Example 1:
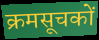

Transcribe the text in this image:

क्रमसूचकों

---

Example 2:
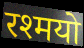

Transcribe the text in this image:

रश्मयो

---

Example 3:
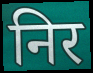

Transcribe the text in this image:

निर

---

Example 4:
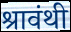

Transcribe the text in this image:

श्रावंथी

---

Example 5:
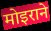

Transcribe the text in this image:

मोइराने